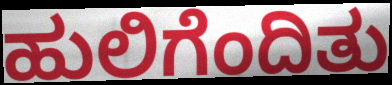
ಹುಲಿಗೆಂದಿತು